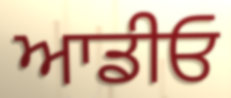
ਆਡੀਓ